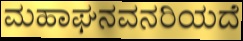
ಮಹಾಘನವನರಿಯದೆ